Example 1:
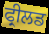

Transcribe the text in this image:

ਫ੍ਰੀਲਡ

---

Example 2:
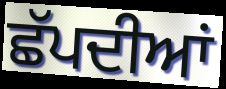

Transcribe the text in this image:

ਛੱਪਦੀਆਂ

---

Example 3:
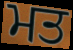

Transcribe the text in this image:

ਮਤ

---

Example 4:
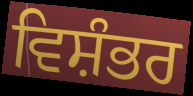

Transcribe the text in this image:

ਵਿਸ਼ੰਭਰ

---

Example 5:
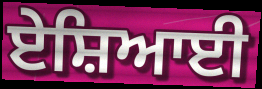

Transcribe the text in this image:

ਏਸ਼ਿਆਈ